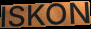
ISKON